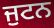
ਜੁਟਨ